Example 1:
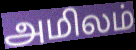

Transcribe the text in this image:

அமிலம்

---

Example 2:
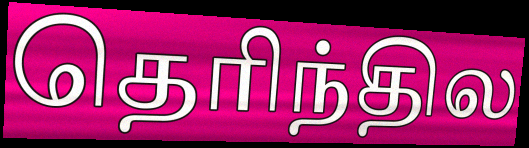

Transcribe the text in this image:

தெரிந்தில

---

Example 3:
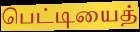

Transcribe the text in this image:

பெட்டியைத்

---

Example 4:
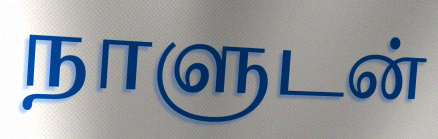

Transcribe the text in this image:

நாளுடன்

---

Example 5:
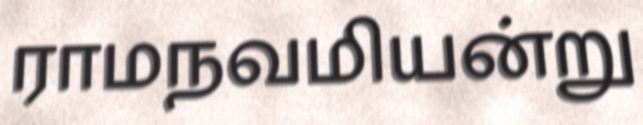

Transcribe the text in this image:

ராமநவமியன்று